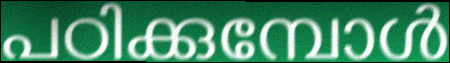
പഠിക്കുമ്പോൾ